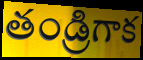
తండ్రిగాక